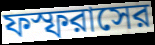
ফস্ফরাসের